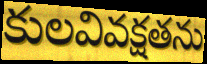
కులవివక్షతను